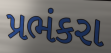
પ્રભંકરા